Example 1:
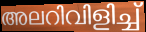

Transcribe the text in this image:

അലറിവിളിച്ച്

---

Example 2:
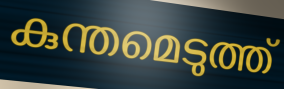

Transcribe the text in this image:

കുന്തമെടുത്ത്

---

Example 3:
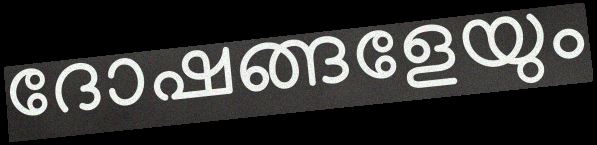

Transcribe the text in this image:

ദോഷങ്ങളേയും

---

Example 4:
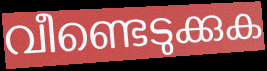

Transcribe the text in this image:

വീണ്ടെടുക്കുക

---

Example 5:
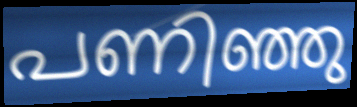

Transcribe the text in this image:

പണിഞ്ഞു